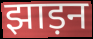
झाड़न